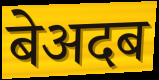
बेअदब